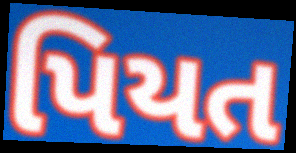
પિયત